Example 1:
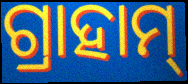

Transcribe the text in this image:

ଗ୍ରାହାମ୍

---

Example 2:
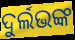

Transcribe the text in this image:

ଦୁର୍ଲଭଙ୍କ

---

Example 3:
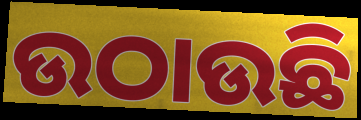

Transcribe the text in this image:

ଉଠାଉଛି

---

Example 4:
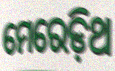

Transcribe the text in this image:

ମେରେଡ଼ିଥ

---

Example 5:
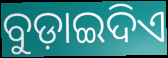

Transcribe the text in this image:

ବୁଡ଼ାଇଦିଏ